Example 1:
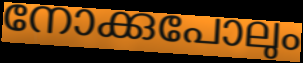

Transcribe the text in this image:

നോക്കുപോലും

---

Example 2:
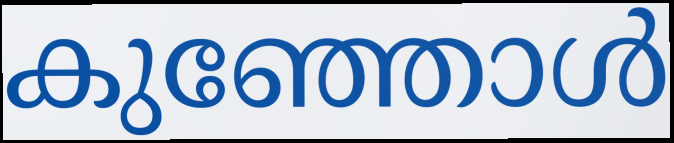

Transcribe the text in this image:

കുഞ്ഞോൾ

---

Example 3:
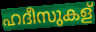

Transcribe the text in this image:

ഹദീസുകള്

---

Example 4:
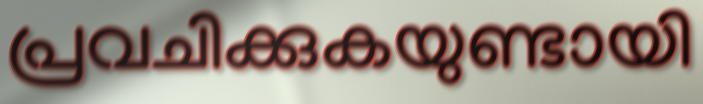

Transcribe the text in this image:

പ്രവചിക്കുകയുണ്ടായി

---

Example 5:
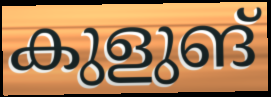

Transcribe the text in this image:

കുളുങ്